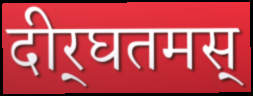
दीर्घतमस्